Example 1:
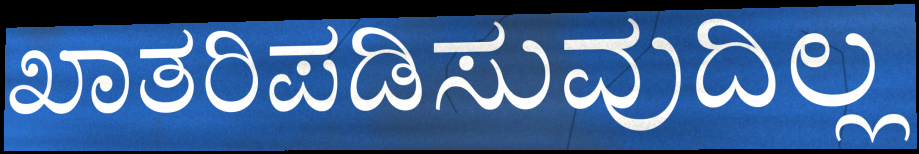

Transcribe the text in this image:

ಖಾತರಿಪಡಿಸುವುದಿಲ್ಲ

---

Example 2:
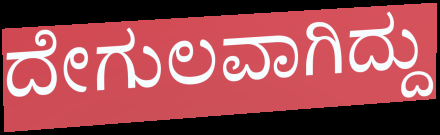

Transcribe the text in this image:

ದೇಗುಲವಾಗಿದ್ದು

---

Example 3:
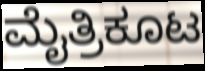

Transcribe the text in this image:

ಮೈತ್ರಿಕೂಟ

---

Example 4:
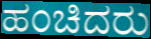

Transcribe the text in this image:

ಹಂಚಿದರು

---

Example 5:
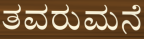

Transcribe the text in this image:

ತವರುಮನೆ